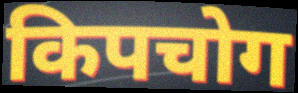
किपचोग